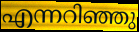
എന്നറിഞ്ഞു